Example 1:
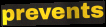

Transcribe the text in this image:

prevents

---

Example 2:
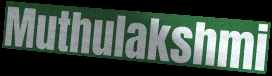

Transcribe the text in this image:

Muthulakshmi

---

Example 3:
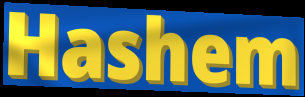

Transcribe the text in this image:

Hashem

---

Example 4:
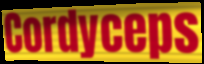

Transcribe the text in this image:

Cordyceps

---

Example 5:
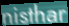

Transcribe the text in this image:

nisthar